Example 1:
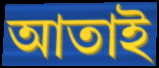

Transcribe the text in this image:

আতাই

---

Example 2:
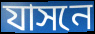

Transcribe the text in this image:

যাসনে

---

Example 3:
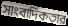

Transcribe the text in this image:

সাংবাদিকতার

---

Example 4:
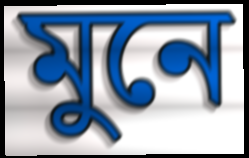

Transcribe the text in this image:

মুনে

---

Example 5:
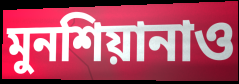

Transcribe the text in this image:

মুনশিয়ানাও